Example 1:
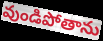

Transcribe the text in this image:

వుండిపోతాను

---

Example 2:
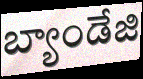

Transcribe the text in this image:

బ్యాండేజి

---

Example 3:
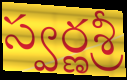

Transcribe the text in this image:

స్వర్ణశ్రీ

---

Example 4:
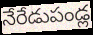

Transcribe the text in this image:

నేరేడుపండ్ల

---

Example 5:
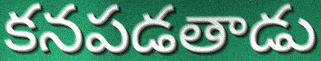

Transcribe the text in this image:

కనపడతాడు